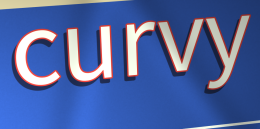
curvy